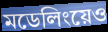
মডেলিংয়েও